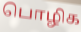
பொழிக